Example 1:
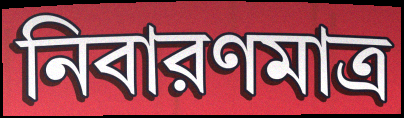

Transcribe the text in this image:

নিবারণমাত্র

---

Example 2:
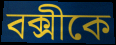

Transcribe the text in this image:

বক্সীকে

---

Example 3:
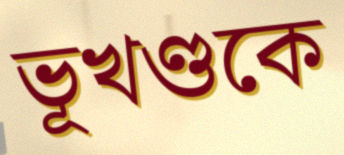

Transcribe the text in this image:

ভূখণ্ডকে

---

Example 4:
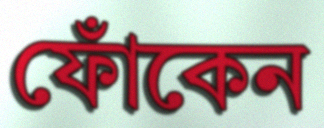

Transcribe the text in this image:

ফোঁকেন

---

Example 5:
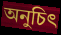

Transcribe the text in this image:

অনুচিৎ